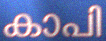
കാപി